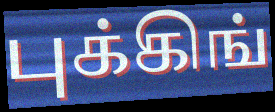
புக்கிங்